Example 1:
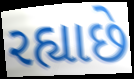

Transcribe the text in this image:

રહ્યાછે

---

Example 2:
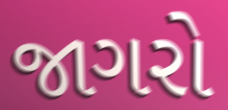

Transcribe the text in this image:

જાગરો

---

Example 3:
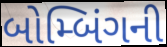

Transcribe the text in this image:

બોમ્બિંગની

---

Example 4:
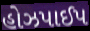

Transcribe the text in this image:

હોઝપાઈપ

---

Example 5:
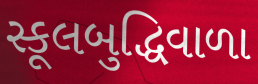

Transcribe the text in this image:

સ્કૂલબુદ્ધિવાળા